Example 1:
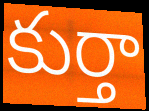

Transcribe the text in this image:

కుర్తా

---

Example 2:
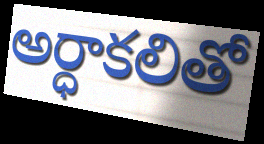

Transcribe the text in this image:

అర్ధాకలితో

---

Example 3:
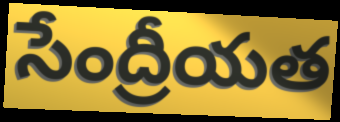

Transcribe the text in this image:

సేంద్రీయత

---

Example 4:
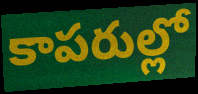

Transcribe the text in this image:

కాపరుల్లో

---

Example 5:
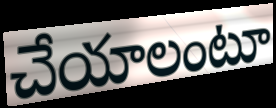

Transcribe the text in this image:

చేయాలంటూ